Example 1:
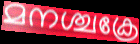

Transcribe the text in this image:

മനശ്ചക്രേ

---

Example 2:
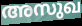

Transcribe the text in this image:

അസുഖ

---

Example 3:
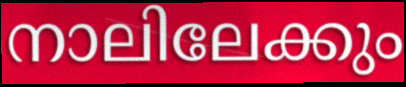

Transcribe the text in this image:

നാലിലേക്കും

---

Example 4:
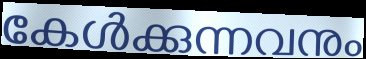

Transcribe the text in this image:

കേൾക്കുന്നവനും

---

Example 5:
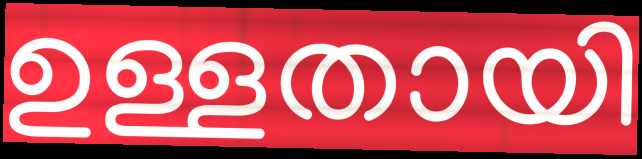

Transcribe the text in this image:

ഉള്ളതായി